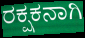
ರಕ್ಷಕನಾಗಿ